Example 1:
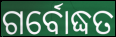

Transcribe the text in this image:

ଗର୍ବୋଦ୍ଧତ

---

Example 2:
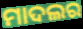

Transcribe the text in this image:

ମାଦଲର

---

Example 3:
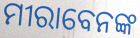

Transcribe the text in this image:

ମୀରାବେନଙ୍କ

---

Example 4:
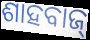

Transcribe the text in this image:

ଶାହବାଜ୍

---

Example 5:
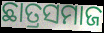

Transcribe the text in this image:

ଛାତ୍ରସମାଜ